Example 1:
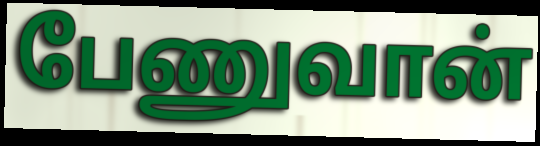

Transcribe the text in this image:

பேணுவான்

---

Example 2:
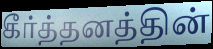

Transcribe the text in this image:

கீர்த்தனத்தின்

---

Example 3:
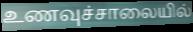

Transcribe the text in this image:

உணவுச்சாலையில்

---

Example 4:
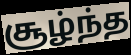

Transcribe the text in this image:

சூழ்ந்த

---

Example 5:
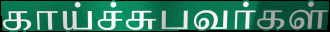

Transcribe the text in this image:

காய்ச்சுபவர்கள்